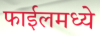
फाईलमध्ये